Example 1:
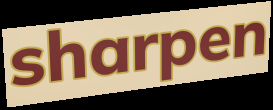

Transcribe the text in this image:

sharpen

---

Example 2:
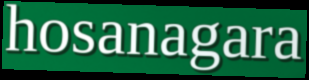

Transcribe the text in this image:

hosanagara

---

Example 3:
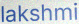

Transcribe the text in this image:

lakshmi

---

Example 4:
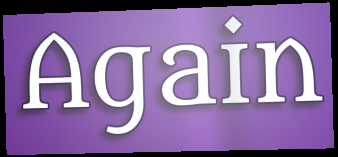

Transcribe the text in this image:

Again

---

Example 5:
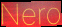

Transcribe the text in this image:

Nero